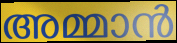
അമ്മാൻ